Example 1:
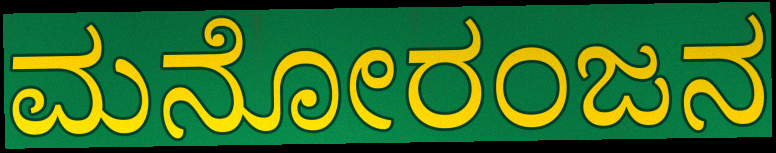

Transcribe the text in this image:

ಮನೋರಂಜನ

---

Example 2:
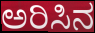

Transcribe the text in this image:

ಅರಿಸಿನ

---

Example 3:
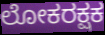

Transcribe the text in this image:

ಲೋಕರಕ್ಷಕ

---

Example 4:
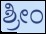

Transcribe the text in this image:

ಶ್ರೀಂ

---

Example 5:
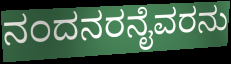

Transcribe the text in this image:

ನಂದನರನೈವರನು